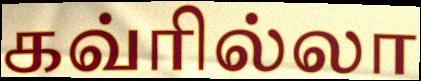
கவ்ரில்லா